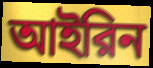
আইরিন